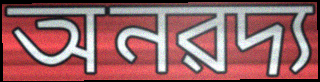
অনৱদ্য